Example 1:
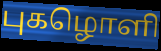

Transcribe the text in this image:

புகழொளி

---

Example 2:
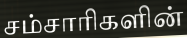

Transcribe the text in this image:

சம்சாரிகளின்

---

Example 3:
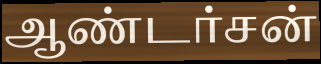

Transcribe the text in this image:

ஆண்டர்சன்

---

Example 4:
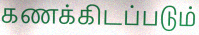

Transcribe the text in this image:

கணக்கிடப்படும்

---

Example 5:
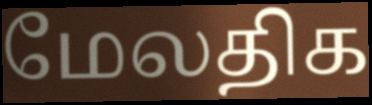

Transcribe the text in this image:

மேலதிக